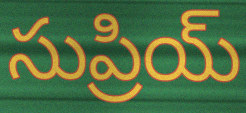
సుప్రియ్